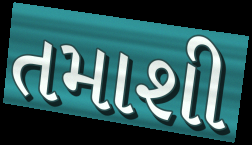
તમાશી